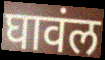
घावंल